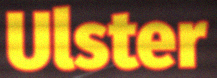
Ulster